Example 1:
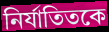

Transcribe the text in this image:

নির্যাতিতকে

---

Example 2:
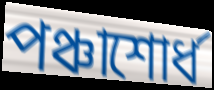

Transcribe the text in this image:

পঞ্চাশোর্ধ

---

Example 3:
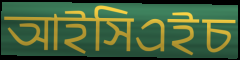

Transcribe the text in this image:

আইসিএইচ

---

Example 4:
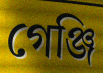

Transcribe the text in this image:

গেঞ্জি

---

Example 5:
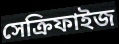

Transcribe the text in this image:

সেক্রিফাইজ